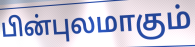
பின்புலமாகும்